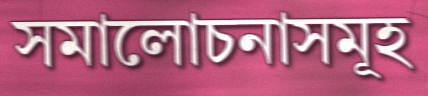
সমালোচনাসমূহ